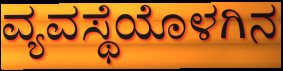
ವ್ಯವಸ್ಥೆಯೊಳಗಿನ